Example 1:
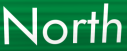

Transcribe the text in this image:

North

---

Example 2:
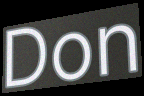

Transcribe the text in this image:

Don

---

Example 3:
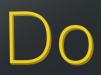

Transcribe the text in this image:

Do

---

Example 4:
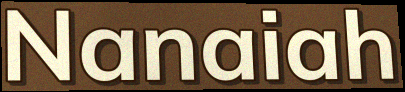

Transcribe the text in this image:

Nanaiah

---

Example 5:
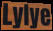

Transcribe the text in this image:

Lylye